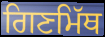
ਗਿਣਮਿੱਥ